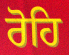
ਰੋਹਿ